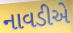
નાવડીએ